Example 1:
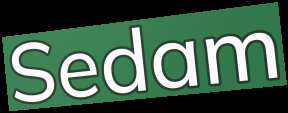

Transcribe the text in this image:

Sedam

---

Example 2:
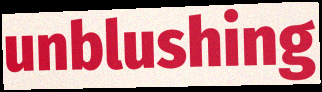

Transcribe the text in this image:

unblushing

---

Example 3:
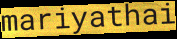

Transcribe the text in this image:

mariyathai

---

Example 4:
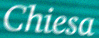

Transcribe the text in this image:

Chiesa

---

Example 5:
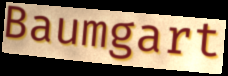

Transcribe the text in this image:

Baumgart